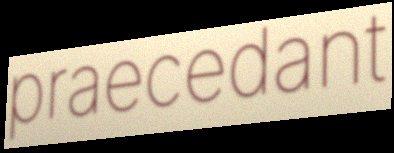
praecedant